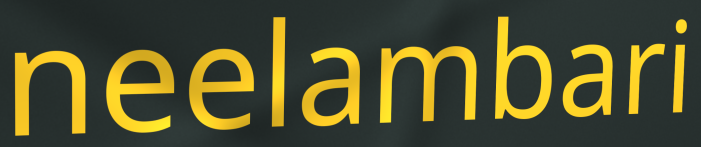
neelambari